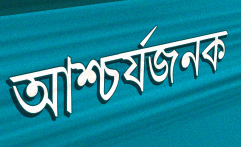
আশ্চৰ্যজনক